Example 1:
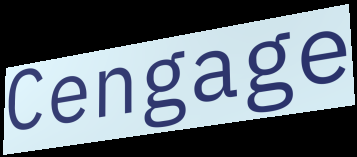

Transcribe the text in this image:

Cengage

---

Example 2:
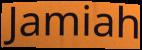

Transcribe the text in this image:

Jamiah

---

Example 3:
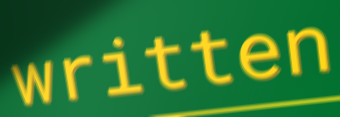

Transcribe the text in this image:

written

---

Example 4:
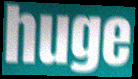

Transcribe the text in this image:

huge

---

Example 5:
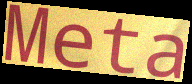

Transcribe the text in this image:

Meta